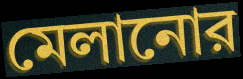
মেলানোর